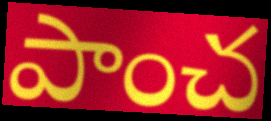
పాంచ